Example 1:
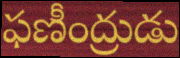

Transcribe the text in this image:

ఫణీంద్రుడు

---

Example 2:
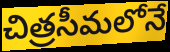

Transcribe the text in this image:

చిత్రసీమలోనే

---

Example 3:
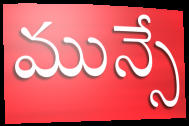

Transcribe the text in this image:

మున్సే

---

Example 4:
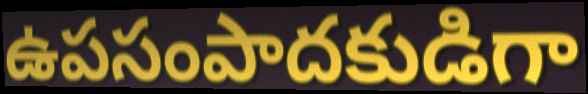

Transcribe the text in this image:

ఉపసంపాదకుడిగా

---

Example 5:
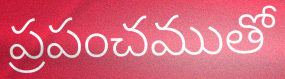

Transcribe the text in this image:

ప్రపంచముతో